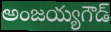
అంజయ్యగౌడ్